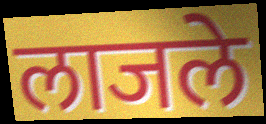
लाजले